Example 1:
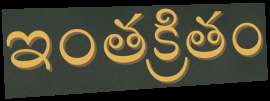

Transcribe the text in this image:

ఇంతక్రితం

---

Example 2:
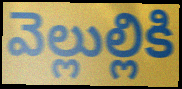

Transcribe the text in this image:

వెల్లుల్లికి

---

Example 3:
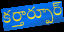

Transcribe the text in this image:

కర్తార్పూర్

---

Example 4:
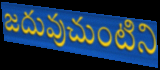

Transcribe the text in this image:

జదువుచుంటిని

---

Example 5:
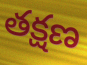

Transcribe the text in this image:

తక్షణ